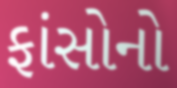
ફાંસોનો